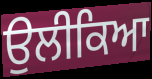
ਉਲੀਕਿਆ